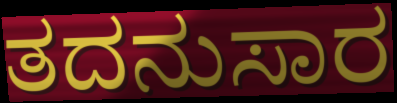
ತದನುಸಾರ